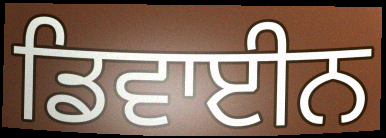
ਡਿਵਾਈਨ